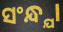
ସଂନ୍ଧ୍ଯା